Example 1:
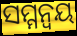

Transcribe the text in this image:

ସମ୍ମନ୍ୱୟ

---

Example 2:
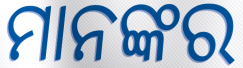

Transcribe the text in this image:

ମାନଙ୍କର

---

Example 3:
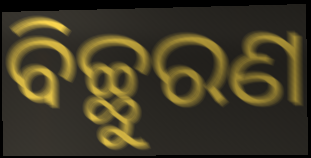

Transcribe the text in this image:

ବିଚ୍ଛୁରଣ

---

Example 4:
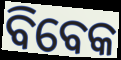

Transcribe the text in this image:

ବିବେକ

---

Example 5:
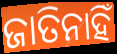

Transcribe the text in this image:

ଜାତିନାହିଁ